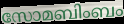
സോമബിംബം